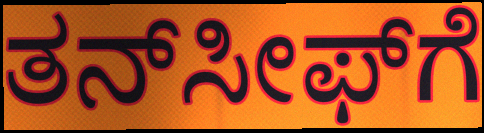
ತನ್‍ಸೀಫ್‍ಗೆ